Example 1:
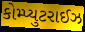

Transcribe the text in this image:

કોમ્પ્યુટરાઈઝ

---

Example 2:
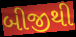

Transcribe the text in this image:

બીજીથી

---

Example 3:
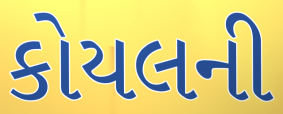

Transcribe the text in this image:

કોયલની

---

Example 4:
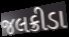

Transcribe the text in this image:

જલક્રીડા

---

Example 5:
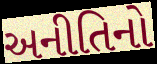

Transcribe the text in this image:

અનીતિનો